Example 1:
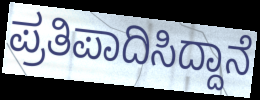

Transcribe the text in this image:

ಪ್ರತಿಪಾದಿಸಿದ್ದಾನೆ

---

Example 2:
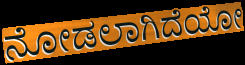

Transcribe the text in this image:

ನೋಡಲಾಗಿದೆಯೋ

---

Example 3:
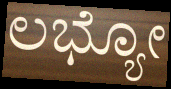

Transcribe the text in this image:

ಲಭ್ಯೋ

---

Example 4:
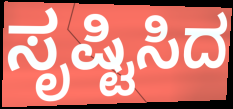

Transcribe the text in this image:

ಸೃಷ್ಟಿಸಿದ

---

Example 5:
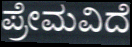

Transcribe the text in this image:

ಪ್ರೇಮವಿದೆ